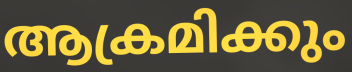
ആക്രമിക്കും